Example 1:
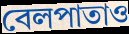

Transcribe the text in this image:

বেলপাতাও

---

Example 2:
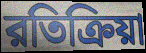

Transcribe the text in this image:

রতিক্রিয়া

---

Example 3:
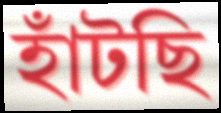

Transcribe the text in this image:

হাঁটছি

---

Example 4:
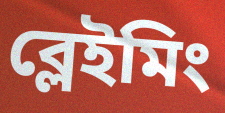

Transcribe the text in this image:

ব্লেইমিং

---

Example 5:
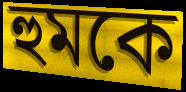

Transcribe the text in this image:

হুমকে